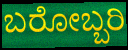
ಬರೋಬ್ಬರಿ